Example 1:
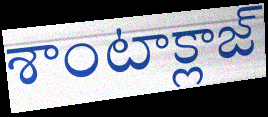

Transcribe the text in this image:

శాంటాక్లాజ్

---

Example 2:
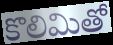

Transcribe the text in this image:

కొలిమితో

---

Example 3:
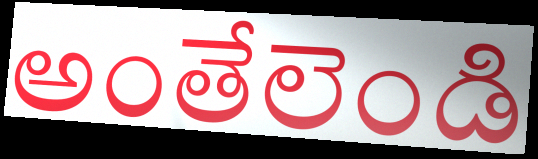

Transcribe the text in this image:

అంతేలెండి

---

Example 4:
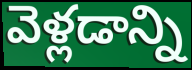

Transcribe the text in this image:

వెళ్లడాన్ని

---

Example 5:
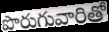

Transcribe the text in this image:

పొరుగువారితో